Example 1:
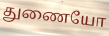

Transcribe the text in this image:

துணையோ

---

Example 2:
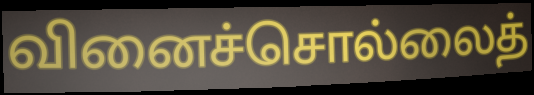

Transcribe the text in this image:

வினைச்சொல்லைத்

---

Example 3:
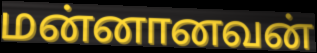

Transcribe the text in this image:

மன்னானவன்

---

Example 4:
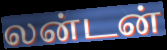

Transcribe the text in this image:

லன்டன்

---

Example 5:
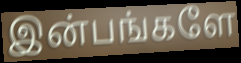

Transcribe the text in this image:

இன்பங்களே